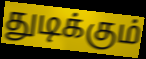
துடிக்கும்